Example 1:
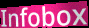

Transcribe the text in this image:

Infobox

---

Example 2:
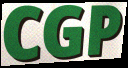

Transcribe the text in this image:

CGP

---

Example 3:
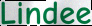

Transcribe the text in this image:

Lindee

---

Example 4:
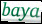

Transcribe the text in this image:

baya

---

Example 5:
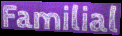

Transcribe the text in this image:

Familial